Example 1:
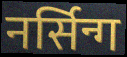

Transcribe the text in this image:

नर्सिन्ग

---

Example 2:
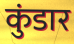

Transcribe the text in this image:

कुंडार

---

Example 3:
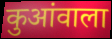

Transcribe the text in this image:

कुआंवाला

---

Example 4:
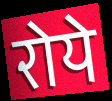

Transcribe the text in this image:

रोये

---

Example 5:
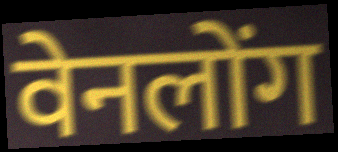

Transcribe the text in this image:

वेनलोंग